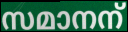
സമാനന്